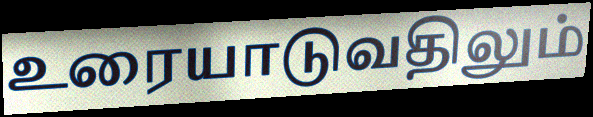
உரையாடுவதிலும்